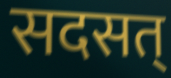
सदसत्